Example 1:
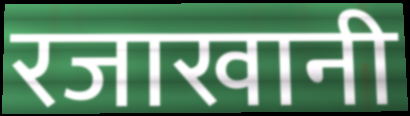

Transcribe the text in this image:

रजाखानी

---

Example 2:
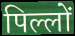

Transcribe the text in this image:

पिल्लों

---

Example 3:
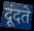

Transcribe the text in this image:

दूंदते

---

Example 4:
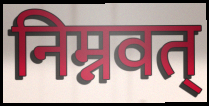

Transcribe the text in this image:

निम्नवत्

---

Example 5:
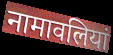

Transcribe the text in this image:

नामावलियां